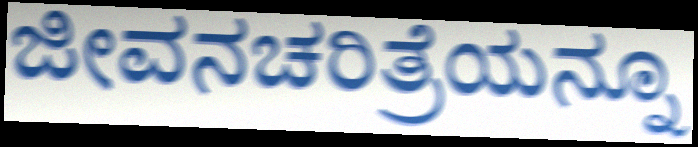
ಜೀವನಚರಿತ್ರೆಯನ್ನೂ